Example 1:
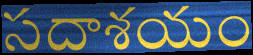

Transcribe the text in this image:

సదాశయం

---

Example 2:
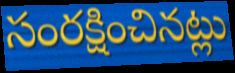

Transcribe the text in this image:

సంరక్షించినట్లు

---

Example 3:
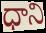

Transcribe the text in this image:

ధాని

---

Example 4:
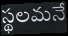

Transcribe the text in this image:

స్థలమనే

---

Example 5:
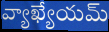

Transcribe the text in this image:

వ్యాఖ్యేయమ్